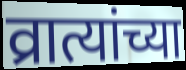
व्रात्यांच्या